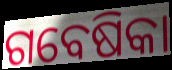
ଗବେଷିକା